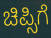
ಚಿಪ್ಸಿಗೆ